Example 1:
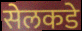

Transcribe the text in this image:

सेलकडे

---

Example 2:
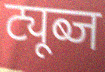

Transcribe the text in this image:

ट्यूब्ज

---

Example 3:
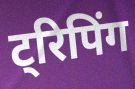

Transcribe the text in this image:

ट्रिपिंग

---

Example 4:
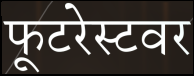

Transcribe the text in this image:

फूटरेस्टवर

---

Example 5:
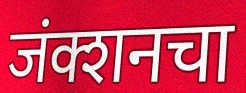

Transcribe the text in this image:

जंक्‍शनचा